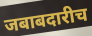
जबाबदारीच